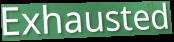
Exhausted